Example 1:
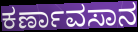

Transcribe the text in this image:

ಕರ್ಣಾವಸಾನ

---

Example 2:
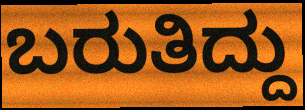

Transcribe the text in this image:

ಬರುತಿದ್ದು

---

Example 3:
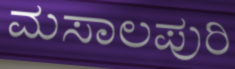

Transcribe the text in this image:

ಮಸಾಲಪುರಿ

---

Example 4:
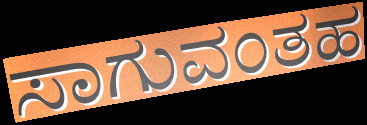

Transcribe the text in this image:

ಸಾಗುವಂತಹ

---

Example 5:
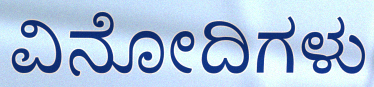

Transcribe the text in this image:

ವಿನೋದಿಗಳು